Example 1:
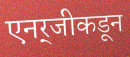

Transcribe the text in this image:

एनर्जीकडून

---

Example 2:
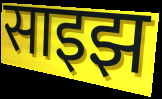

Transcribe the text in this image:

साइझ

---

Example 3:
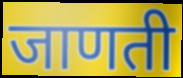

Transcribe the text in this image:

जाणती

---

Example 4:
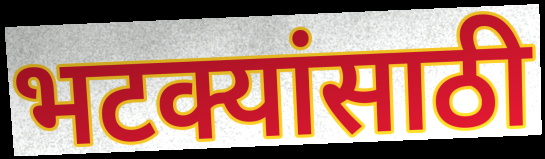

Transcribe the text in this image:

भटक्यांसाठी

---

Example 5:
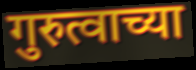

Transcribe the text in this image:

गुरुत्वाच्या